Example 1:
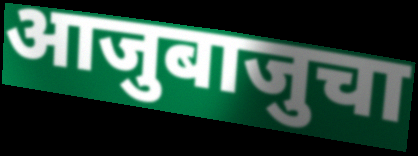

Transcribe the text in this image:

आजुबाजुचा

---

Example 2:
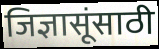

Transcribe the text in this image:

जिज्ञासूंसाठी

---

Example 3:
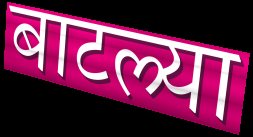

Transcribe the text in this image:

बाटल्या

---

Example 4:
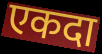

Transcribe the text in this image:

एकदा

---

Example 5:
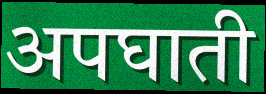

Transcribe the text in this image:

अपघाती